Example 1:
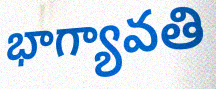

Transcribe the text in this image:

భాగ్యావతి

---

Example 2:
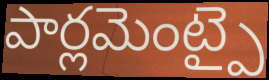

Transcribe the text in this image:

పార్లమెంట్పై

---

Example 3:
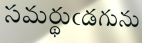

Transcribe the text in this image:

సమర్థుఁడగును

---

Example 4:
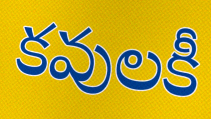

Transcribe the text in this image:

కవులకీ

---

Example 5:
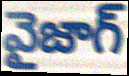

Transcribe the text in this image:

వైజాగ్